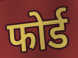
फोर्ड